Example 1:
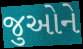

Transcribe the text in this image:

જુઓને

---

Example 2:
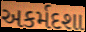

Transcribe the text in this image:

અકર્મદશા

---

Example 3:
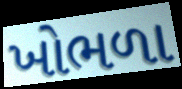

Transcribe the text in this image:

ખોભળા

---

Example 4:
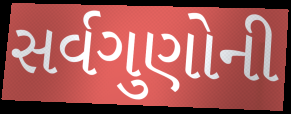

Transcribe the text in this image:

સર્વગુણોની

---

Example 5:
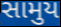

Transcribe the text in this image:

સામુય